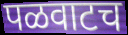
पळवाटच